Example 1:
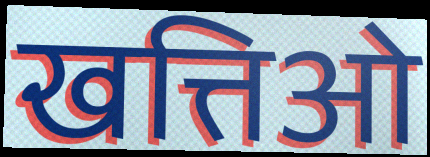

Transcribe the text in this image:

खत्तिओ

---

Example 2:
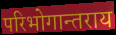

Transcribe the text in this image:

परिभोगान्तराय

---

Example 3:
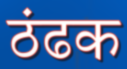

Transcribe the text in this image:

ठंढक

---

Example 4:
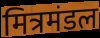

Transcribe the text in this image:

मित्रमंडल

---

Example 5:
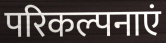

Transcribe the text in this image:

परिकल्पनाएं